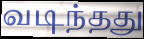
வடிந்தது